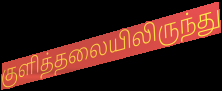
குளித்தலையிலிருந்து